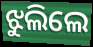
ଝୁଲିଲେ